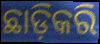
ଛାଡ଼ିକରି